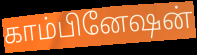
காம்பினேஷன்